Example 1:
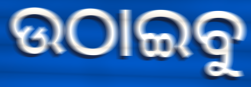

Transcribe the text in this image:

ଉଠାଇବୁ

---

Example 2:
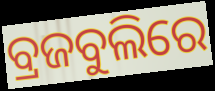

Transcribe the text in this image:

ବ୍ରଜବୁଲିରେ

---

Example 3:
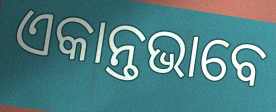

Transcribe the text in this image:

ଏକାନ୍ତଭାବେ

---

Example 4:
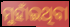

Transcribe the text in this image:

ମୁହାଁଇଥିବା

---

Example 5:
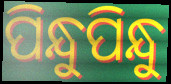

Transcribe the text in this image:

ପିନ୍ଧୁପିନ୍ଧୁ